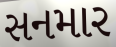
સનમાર